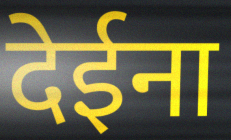
देईना